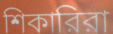
শিকারিরা